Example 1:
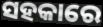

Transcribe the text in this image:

ସହକାରେ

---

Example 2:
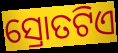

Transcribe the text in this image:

ସ୍ରୋତଟିଏ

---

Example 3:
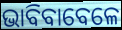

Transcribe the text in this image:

ଭାବିବାବେଳେ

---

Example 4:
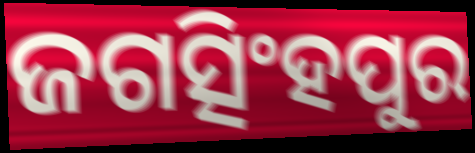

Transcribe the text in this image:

ଜଗତ୍ସିଂହପୁର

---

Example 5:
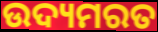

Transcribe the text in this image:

ଉଦ୍ୟମରତ